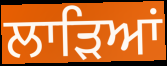
ਲਾੜਿਆਂ